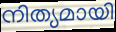
നിത്യമായി